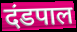
दंडपाल